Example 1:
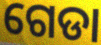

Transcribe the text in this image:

ଗେଡା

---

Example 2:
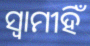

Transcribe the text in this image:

ସ୍ଵାମୀହିଁ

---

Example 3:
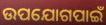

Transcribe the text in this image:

ଉପଯୋଗପାଇଁ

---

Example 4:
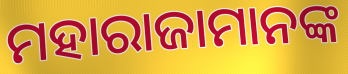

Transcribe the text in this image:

ମହାରାଜାମାନଙ୍କ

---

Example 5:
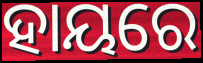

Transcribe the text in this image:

ହାୟରେ